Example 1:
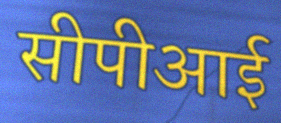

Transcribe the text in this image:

सीपीआई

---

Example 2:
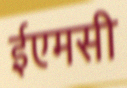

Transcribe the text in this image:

ईएमसी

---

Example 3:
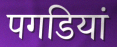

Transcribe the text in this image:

पगडियां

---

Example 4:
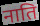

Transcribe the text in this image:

नाति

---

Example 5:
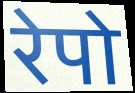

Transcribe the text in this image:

रेपो